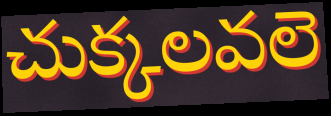
చుక్కలవలె